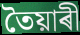
তৈয়াৰী